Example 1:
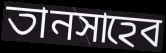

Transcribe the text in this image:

তানসাহেব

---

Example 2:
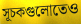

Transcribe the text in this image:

সূচকগুলোতেও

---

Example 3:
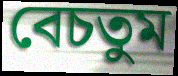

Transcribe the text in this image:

বেচতুম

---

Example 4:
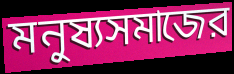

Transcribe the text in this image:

মনুষ্যসমাজের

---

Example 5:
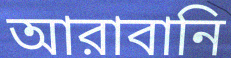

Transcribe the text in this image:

আরাবানি